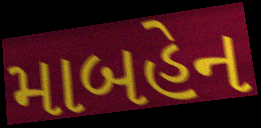
માબહેન